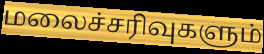
மலைச்சரிவுகளும்